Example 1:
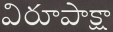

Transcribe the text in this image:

విరూపాక్షా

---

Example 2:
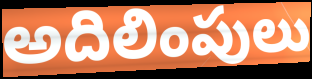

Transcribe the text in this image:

అదిలింపులు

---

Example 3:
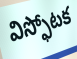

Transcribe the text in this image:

విస్ఫోటక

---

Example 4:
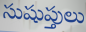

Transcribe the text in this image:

సుషుప్తులు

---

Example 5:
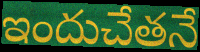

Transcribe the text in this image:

ఇందుచేతనే